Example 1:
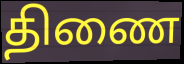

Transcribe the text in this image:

திணை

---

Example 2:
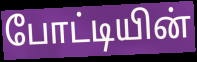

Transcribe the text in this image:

போட்டியின்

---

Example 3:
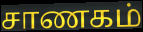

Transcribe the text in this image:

சாணகம்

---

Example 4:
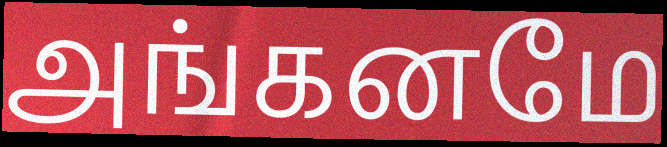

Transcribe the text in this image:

அங்கனமே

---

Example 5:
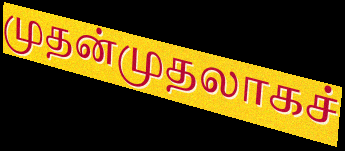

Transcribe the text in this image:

முதன்முதலாகச்